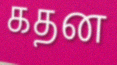
கதன